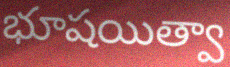
భూషయిత్వా